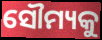
ସୌମ୍ୟକୁ